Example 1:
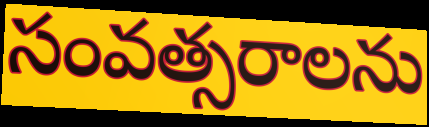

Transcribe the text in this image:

సంవత్సరాలను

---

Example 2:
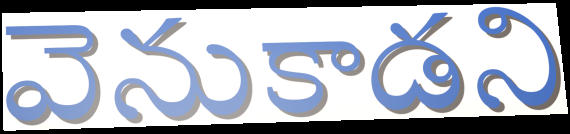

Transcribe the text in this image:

వెనుకాడని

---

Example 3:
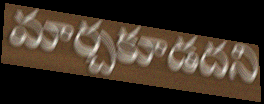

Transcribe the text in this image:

మార్చకూడదని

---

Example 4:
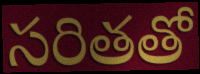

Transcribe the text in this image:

సరితతో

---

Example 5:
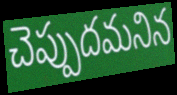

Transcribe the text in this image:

చెప్పుదమనిన